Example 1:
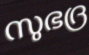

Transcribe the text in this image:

സുഭദ്ര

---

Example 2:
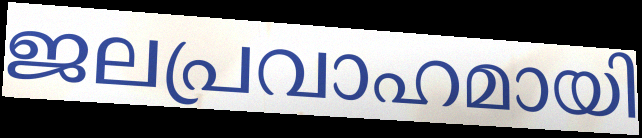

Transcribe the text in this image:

ജലപ്രവാഹമായി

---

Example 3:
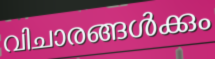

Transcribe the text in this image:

വിചാരങ്ങൾക്കും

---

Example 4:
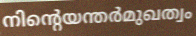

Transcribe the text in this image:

നിന്റെയന്തർമുഖത്വം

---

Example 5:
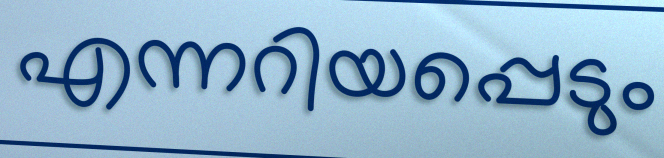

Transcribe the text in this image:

എന്നറിയപ്പെടും